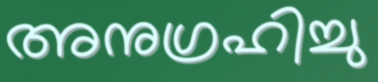
അനുഗ്രഹിച്ചു